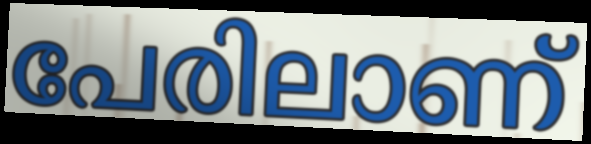
പേരിലാണ്